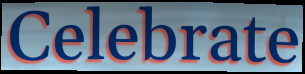
Celebrate